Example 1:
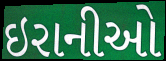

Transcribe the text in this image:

ઇરાનીઓ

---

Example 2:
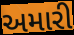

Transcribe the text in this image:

અમારી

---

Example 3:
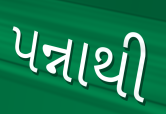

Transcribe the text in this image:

પન્નાથી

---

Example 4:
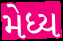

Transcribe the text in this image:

મેધ્ય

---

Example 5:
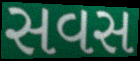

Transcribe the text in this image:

સવસ